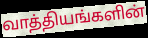
வாத்தியங்களின்